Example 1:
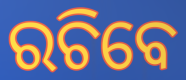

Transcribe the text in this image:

ରଚିବେ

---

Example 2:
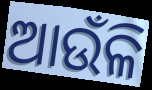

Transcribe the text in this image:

ଆଉଁଳି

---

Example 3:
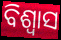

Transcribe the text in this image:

ବିଶ୍ଵାସ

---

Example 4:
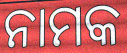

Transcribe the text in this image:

ନାମକ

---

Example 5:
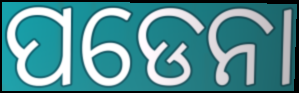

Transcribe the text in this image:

ପଡେନା